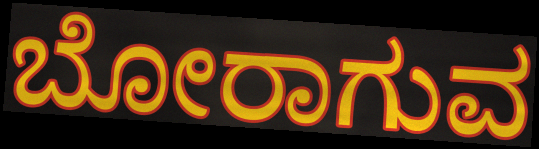
ಬೋರಾಗುವ